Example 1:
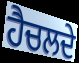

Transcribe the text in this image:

ਹੈਚਲਦੇ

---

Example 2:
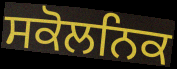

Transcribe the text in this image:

ਸਕੋਲਨਿਕ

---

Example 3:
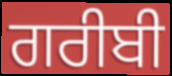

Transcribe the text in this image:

ਗਰੀਬੀ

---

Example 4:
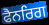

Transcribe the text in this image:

ਫੈਨਰਿਗ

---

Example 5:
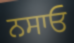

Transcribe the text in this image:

ਨਸਾਓ